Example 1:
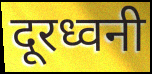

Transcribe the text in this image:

दूरध्वनी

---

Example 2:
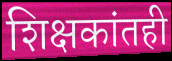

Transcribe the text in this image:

शिक्षकांतही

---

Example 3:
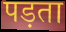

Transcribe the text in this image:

पड़ता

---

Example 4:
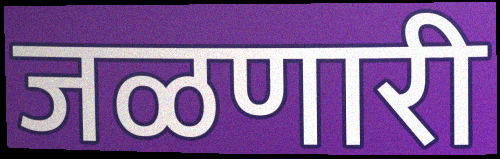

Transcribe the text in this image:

जळणारी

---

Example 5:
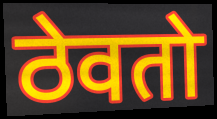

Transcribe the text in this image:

ठेवतो